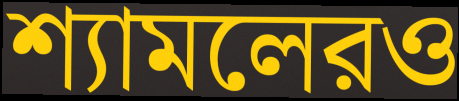
শ্যামলেরও